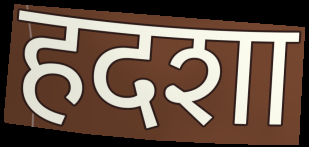
हदशा